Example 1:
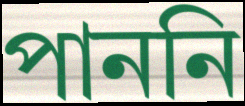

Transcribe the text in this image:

পাননি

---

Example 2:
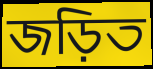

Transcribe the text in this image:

জড়িত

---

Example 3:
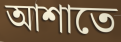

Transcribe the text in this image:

আশাতে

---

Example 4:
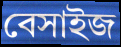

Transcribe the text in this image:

বেসাইজ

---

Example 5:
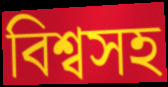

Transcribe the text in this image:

বিশ্বসহ